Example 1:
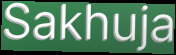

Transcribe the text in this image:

Sakhuja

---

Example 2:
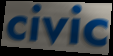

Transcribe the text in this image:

civic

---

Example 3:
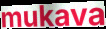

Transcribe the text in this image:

mukava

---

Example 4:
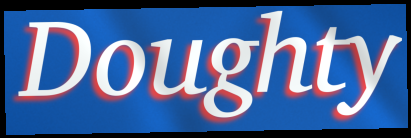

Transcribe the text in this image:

Doughty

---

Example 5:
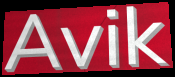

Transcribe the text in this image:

Avik